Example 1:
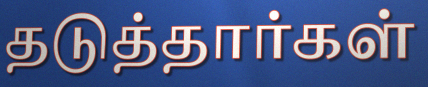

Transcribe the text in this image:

தடுத்தார்கள்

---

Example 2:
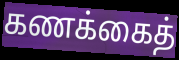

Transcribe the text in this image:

கணக்கைத்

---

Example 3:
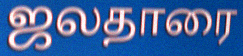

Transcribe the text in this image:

ஜலதாரை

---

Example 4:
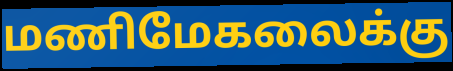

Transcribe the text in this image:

மணிமேகலைக்கு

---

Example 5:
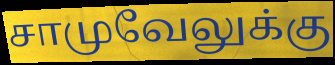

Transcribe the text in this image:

சாமுவேலுக்கு